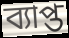
ব্যাপ্ত